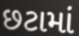
છટામાં